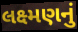
લક્ષ્મણનું